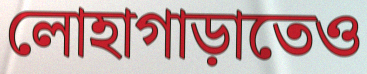
লোহাগাড়াতেও